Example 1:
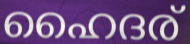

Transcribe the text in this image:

ഹൈദര്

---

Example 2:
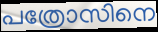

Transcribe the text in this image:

പത്രോസിനെ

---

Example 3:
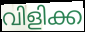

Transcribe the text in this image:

വിളിക്ക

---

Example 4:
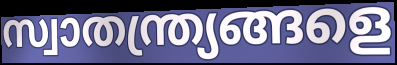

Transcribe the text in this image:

സ്വാതന്ത്ര്യങ്ങളെ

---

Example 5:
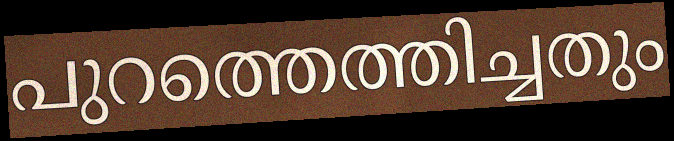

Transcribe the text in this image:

പുറത്തെത്തിച്ചതും